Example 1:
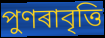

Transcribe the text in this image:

পুণৰাবৃত্তি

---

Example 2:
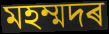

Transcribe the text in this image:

মহম্মদৰ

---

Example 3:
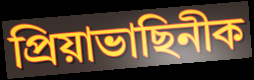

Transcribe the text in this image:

প্ৰিয়াভাছিনীক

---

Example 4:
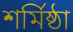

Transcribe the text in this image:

শৰ্মিষ্ঠা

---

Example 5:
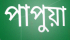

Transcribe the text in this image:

পাপুয়া